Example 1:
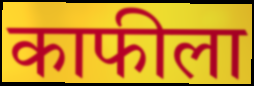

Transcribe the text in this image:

काफीला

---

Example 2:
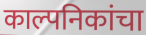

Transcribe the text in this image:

काल्पनिकांचा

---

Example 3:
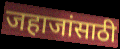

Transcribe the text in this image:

जहाजांसाठी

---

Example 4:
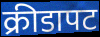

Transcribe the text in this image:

क्रीडापट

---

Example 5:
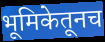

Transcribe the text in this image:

भूमिकेतूनच